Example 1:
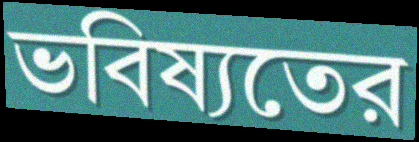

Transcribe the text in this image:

ভবিষ্যতের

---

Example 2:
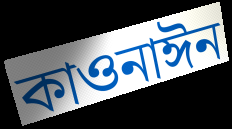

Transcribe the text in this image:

কাওনাঈন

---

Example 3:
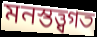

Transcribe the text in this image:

মনস্তত্ত্বগত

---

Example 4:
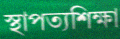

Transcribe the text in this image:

স্থাপত্যশিক্ষা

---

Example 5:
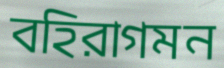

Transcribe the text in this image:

বহিরাগমন